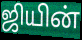
ஜியின்